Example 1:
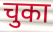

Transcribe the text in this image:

चुका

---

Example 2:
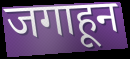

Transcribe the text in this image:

जगाहून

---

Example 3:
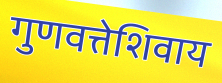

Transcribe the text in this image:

गुणवत्तेशिवाय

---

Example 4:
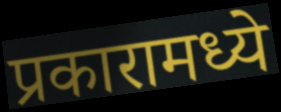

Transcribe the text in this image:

प्रकारामध्ये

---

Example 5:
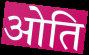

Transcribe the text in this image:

ओति